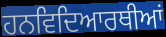
ਹਨਵਿਦਿਆਰਥੀਆਂ